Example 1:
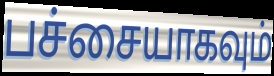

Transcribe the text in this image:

பச்சையாகவும்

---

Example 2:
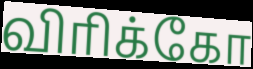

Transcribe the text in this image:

விரிக்கோ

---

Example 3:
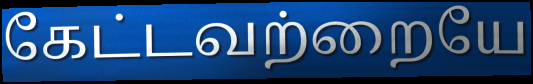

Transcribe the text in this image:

கேட்டவற்றையே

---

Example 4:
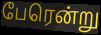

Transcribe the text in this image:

பேரென்று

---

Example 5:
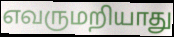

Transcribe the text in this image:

எவருமறியாது